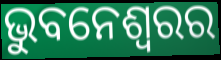
ଭୁବନେଶ୍ୱରର